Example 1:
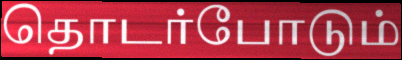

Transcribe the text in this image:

தொடர்போடும்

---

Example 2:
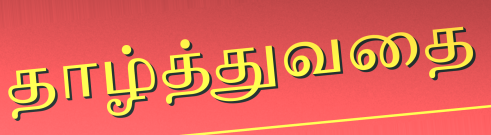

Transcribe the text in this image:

தாழ்த்துவதை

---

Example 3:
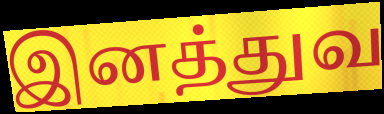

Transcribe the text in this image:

இனத்துவ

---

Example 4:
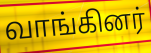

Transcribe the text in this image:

வாங்கினர்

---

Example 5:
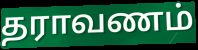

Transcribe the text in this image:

தராவணம்